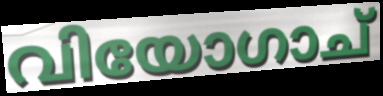
വിയോഗാച്